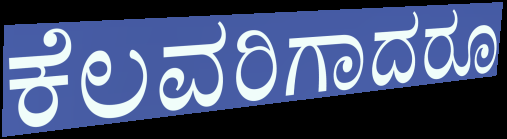
ಕೆಲವರಿಗಾದರೂ